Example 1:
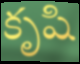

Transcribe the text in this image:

కృషి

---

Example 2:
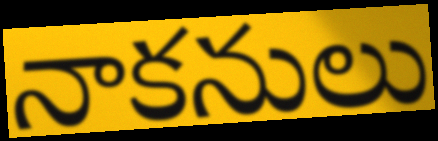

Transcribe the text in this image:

నాకనులు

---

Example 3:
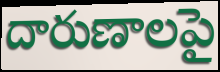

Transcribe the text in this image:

దారుణాలపై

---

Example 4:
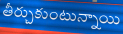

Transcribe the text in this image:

తీర్చుకుంటున్నాయి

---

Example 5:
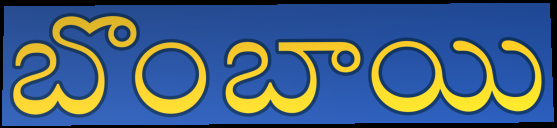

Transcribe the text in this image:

బొంబాయి